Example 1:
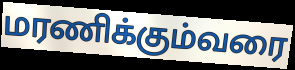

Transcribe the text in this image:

மரணிக்கும்வரை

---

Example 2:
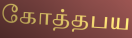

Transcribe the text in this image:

கோத்தபய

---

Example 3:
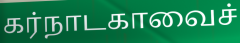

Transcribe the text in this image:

கர்நாடகாவைச்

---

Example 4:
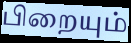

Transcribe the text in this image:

பிறையும்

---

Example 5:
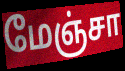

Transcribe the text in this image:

மேஞ்சா